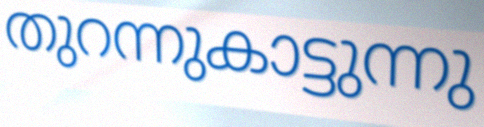
തുറന്നുകാട്ടുന്നു